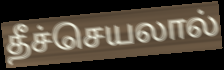
தீச்செயலால்